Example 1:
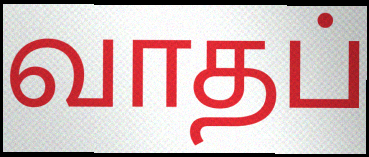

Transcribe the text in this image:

வாதப்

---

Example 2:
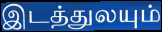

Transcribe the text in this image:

இடத்துலயும்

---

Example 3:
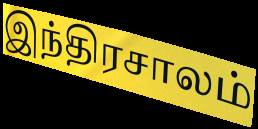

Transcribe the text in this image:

இந்திரசாலம்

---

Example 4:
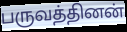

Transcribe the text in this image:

பருவத்தினன்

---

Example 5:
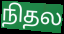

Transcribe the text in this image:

நிதல